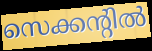
സെക്കന്റിൽ